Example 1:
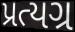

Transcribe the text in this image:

પ્રત્યગ્ર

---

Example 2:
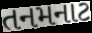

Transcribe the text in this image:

તનમનાટ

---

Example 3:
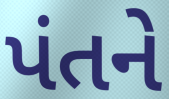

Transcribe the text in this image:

પંતને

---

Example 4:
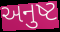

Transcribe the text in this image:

અનુષ્ટ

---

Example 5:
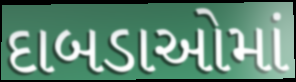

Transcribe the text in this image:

દાબડાઓમાં